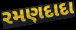
રમણદાદા